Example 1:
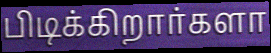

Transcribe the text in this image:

பிடிக்கிறார்களா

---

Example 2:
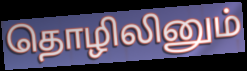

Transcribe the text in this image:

தொழிலினும்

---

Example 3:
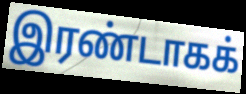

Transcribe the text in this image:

இரண்டாகக்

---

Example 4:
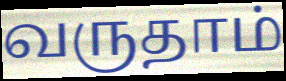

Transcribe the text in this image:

வருதாம்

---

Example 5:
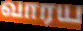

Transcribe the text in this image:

வாரய